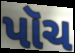
પૉચ